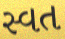
સ્વત